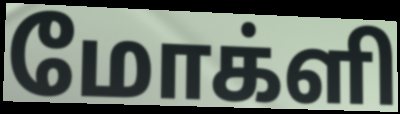
மோக்ளி